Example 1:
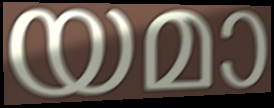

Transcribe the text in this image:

യമാ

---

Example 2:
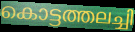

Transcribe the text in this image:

കൊട്ടത്തലച്ചി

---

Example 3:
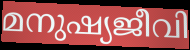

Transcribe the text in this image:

മനുഷ്യജീവി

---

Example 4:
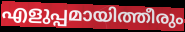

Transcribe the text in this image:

എളുപ്പമായിത്തീരും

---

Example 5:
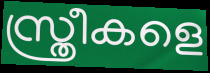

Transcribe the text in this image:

സ്ത്രീകളെ